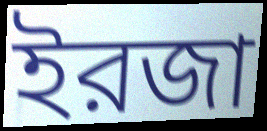
ইরজা